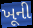
ખૂની